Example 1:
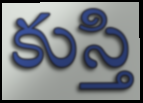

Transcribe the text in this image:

కుస్తి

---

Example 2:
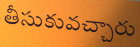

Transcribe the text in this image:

తీసుకువచ్చారు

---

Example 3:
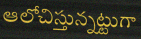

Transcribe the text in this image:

ఆలోచిస్తున్నట్టుగా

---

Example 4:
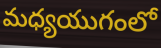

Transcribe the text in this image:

మధ్యయుగంలో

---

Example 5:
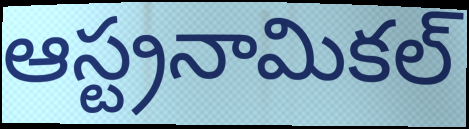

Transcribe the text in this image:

ఆస్ట్రనామికల్